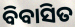
ବିବାସିତ